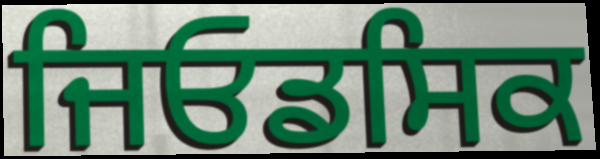
ਜਿਓਡਸਿਕ